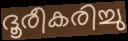
ദൂരീകരിച്ചു